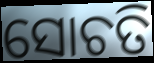
ସୋଚତି